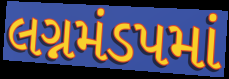
લગ્નમંડપમાં